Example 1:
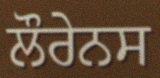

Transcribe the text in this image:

ਲੌਰੇਨਸ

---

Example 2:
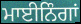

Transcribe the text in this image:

ਮਾਈਨਿੰਗਾਂ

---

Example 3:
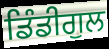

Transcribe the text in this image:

ਡਿੰਡੀਗੁਲ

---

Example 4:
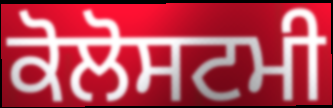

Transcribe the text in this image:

ਕੋਲੋਸਟਮੀ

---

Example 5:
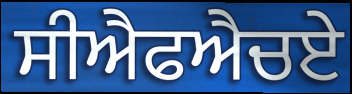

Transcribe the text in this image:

ਸੀਐਫਐਚਏ